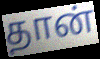
தான்